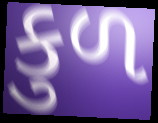
કુળ